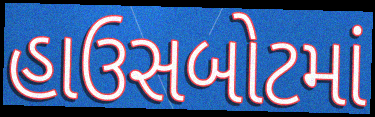
હાઉસબોટમાં